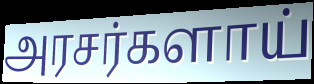
அரசர்களாய்